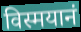
विस्मयानं